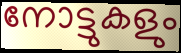
നോട്ടുകളും